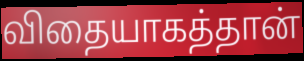
விதையாகத்தான்